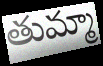
తుమ్మా